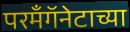
परमँगॅनेटाच्या